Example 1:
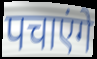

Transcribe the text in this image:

पचाएंगे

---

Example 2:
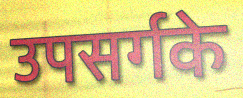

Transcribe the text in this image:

उपसर्गके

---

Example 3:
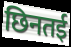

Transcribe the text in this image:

छिनतई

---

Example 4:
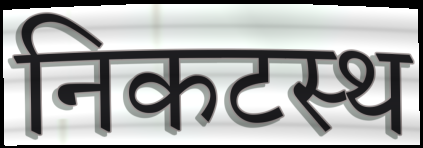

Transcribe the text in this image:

निकटस्थ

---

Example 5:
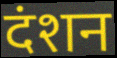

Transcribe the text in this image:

दंशन